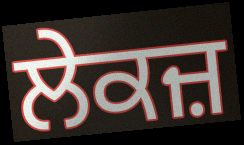
ਲੇਕਜ਼